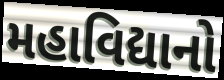
મહાવિદ્યાનો